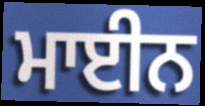
ਮਾਈਨ